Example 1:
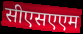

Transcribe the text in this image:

सीएसएएम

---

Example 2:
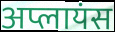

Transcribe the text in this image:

अप्लायंस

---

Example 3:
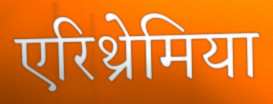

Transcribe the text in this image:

एरिथ्रेमिया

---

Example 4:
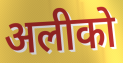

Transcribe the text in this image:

अलीको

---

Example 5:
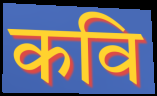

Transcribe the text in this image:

कवि